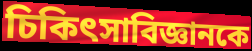
চিকিৎসাবিজ্ঞানকে